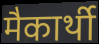
मैकार्थी